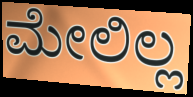
ಮೇಲಿಲ್ಲ